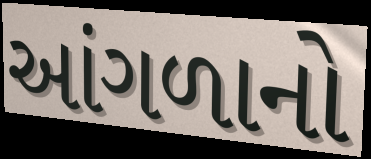
આંગળાનો